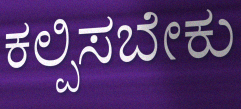
ಕಲ್ಪಿಸಬೇಕು